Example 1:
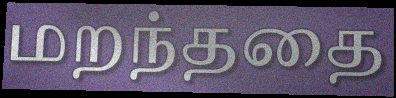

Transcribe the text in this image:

மறந்ததை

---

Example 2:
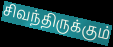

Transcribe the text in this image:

சிவந்திருக்கும்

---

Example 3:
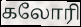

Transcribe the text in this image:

கலோரி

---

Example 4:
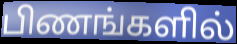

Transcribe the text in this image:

பிணங்களில்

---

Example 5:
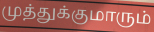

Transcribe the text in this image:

முத்துக்குமாரும்